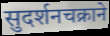
सुदर्शनचक्राने